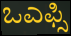
ಒಎಫ್ಸಿ